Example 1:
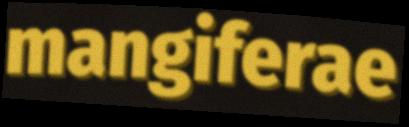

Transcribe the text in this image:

mangiferae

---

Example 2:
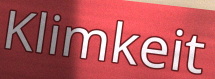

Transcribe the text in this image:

Klimkeit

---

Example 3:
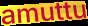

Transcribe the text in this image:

amuttu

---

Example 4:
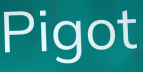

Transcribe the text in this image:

Pigot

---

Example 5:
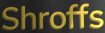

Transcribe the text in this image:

Shroffs